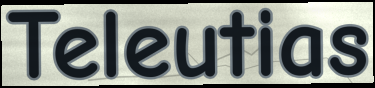
Teleutias